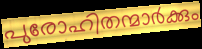
പുരോഹിതന്മാർക്കും